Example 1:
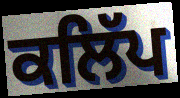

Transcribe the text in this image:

ਕਲਿੱਪ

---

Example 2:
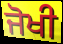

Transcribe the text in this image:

ਜੋਖੀ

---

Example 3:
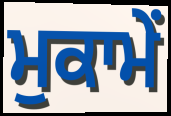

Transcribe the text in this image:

ਮੁਕਾਮੇਂ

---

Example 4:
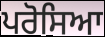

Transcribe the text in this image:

ਪਰੋਸਿਆ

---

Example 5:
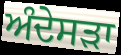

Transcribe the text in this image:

ਅੰਦੇਸੜਾ